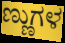
ಣ್ಣುಗಳ